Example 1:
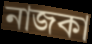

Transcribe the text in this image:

নাজকা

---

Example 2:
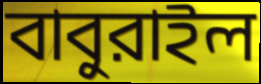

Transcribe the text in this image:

বাবুরাইল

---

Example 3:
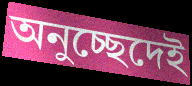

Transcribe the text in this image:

অনুচ্ছেদেই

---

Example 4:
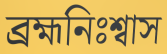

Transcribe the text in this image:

ব্রহ্মনিঃশ্বাস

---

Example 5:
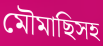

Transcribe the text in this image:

মৌমাছিসহ